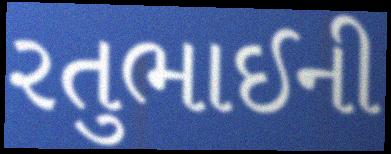
રતુભાઈની